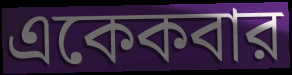
একেকবার